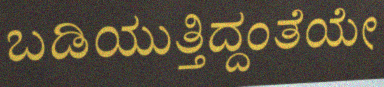
ಬಡಿಯುತ್ತಿದ್ದಂತೆಯೇ